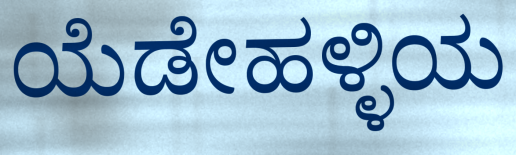
ಯೆಡೇಹಳ್ಳಿಯ